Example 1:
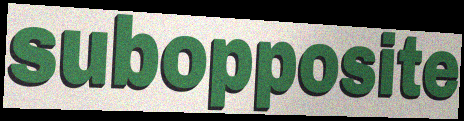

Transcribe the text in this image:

subopposite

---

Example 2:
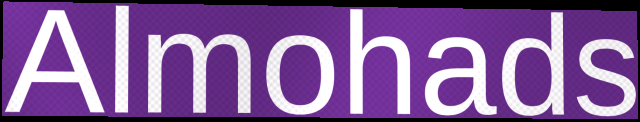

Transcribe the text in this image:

Almohads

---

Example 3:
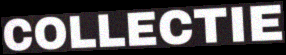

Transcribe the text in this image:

COLLECTIE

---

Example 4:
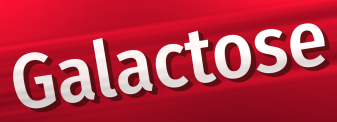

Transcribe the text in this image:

Galactose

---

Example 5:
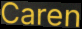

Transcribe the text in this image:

Caren